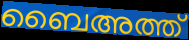
ബൈഅത്ത്